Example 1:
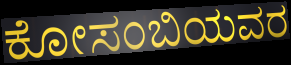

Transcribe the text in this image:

ಕೋಸಂಬಿಯವರ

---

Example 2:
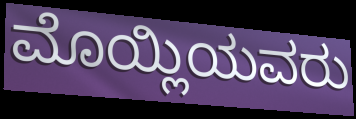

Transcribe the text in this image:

ಮೊಯ್ಲಿಯವರು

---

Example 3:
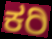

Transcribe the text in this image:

ಕರಿ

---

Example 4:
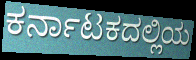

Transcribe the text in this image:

ಕರ್ನಾಟಕದಲ್ಲಿಯ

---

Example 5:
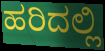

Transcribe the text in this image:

ಹರಿದಲ್ಲಿ